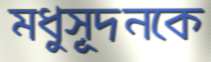
মধুসূদনকে